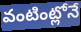
వంటింట్లోనే